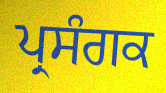
ਪ੍ਰਸੰਗਕ